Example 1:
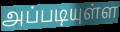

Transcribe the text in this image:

அப்படியுள்ள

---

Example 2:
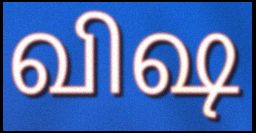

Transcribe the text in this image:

விஷ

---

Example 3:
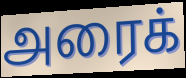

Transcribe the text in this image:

அரைக்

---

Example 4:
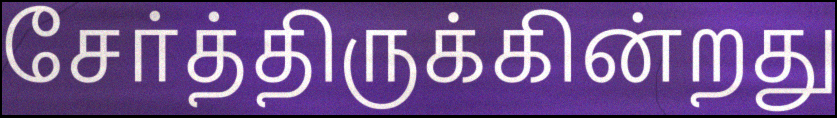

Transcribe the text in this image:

சேர்த்திருக்கின்றது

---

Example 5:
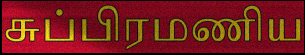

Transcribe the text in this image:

சுப்பிரமணிய